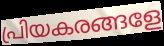
പ്രിയകരങ്ങളേ